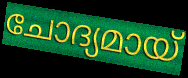
ചോദ്യമായ്